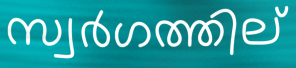
സ്വർഗത്തില്